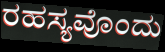
ರಹಸ್ಯವೊಂದು